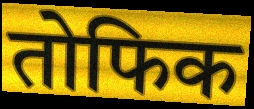
तोफिक